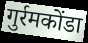
गुर्रमकोंडा